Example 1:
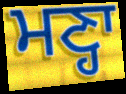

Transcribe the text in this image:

ਮਣ੍ਹਾ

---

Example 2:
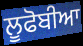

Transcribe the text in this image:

ਲੂਫੋਬੀਆ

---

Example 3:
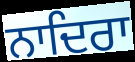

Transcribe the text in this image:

ਨਾਦਿਰਾ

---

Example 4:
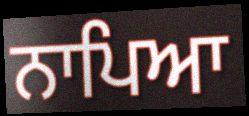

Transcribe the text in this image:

ਨਾਪਿਆ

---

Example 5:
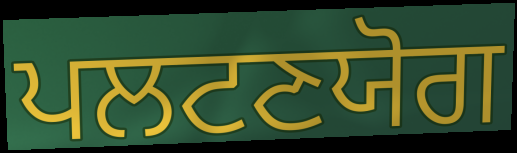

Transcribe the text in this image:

ਪਲਟਣਯੋਗ